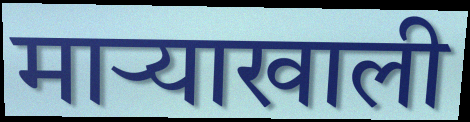
माऱ्याखाली